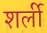
शर्ली